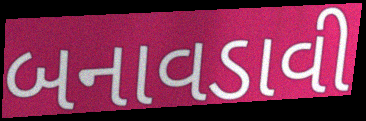
બનાવડાવી